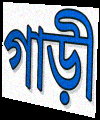
গাড়ী